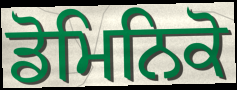
ਡੋਮਿਨਿਕੋ